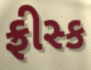
ફ્રીસ્ક